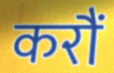
करौं